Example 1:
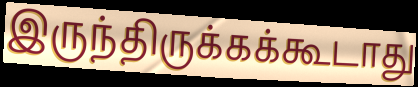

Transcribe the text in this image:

இருந்திருக்கக்கூடாது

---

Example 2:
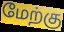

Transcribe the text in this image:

மேற்கு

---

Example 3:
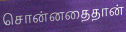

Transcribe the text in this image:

சொன்னதைதான்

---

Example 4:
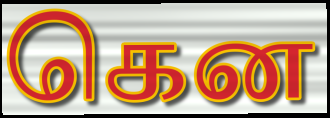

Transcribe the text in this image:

கென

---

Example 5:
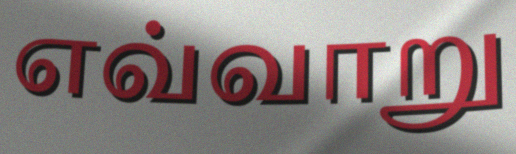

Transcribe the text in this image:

எவ்வாறு